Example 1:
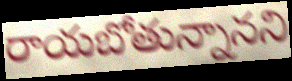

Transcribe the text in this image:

రాయబోతున్నానని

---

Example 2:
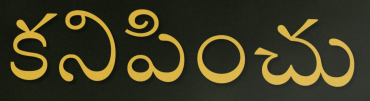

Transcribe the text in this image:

కనిపించు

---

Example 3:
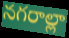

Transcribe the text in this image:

నగరాల్లా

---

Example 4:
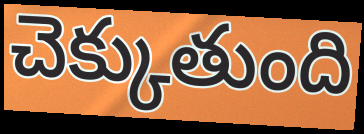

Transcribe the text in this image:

చెక్కుతుంది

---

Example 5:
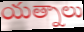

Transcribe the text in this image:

యత్నాలు